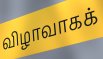
விழாவாகக்